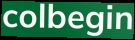
colbegin